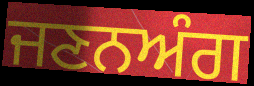
ਜਣਨਅੰਗ